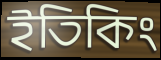
ইতিকিং